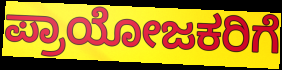
ಪ್ರಾಯೋಜಕರಿಗೆ